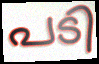
പടി